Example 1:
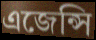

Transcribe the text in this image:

এজেন্সি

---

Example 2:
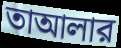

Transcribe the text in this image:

তাআলার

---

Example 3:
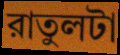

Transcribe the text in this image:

রাতুলটা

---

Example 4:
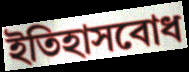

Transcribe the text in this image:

ইতিহাসবোধ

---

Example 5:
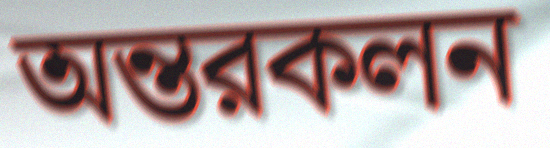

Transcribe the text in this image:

অন্তরকলন